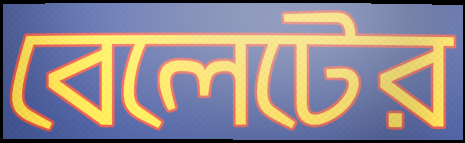
বেলেটের